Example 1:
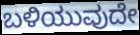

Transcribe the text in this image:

ಬಳಿಯುವುದೇ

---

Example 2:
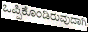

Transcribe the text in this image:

ಒಪ್ಪಿಕೊಂಡಿರುವುದಾಗಿ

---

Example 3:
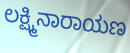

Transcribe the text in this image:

ಲಕ್ಷ್ಮಿನಾರಾಯಣ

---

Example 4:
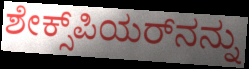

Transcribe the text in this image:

ಶೇಕ್ಸ್‌ಪಿಯರ್‌ನನ್ನು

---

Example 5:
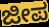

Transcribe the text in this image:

ಜೀಪ